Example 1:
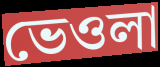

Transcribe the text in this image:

ভেওলা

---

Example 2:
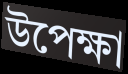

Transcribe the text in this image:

উপেক্ষা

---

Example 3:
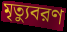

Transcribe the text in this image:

মৃত্যুবরণ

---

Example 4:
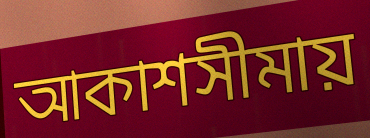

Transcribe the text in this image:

আকাশসীমায়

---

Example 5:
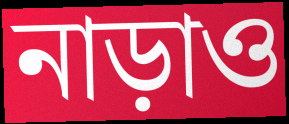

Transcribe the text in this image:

নাড়াও